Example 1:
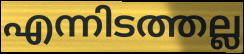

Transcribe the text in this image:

എന്നിടത്തല്ല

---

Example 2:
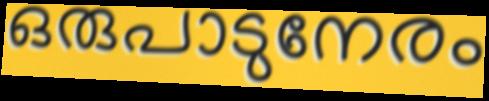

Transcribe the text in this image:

ഒരുപാടുനേരം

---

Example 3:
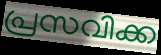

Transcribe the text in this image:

പ്രസവിക്ക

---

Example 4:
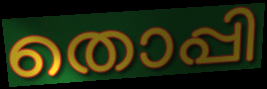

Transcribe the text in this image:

തൊപ്പി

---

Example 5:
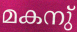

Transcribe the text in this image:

മകനു്